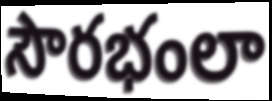
సౌరభంలా